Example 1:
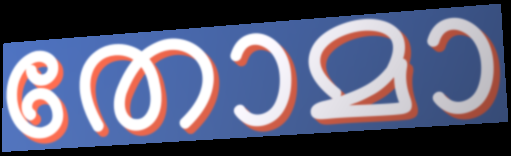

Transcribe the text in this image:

തോമാ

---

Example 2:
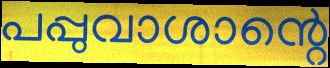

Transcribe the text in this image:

പപ്പുവാശാന്റെ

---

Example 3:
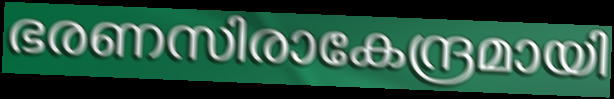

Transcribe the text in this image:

ഭരണസിരാകേന്ദ്രമായി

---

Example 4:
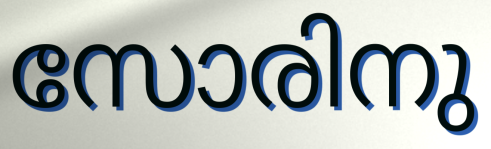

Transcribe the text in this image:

സോരിനു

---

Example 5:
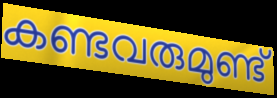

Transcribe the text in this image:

കണ്ടവരുമുണ്ട്